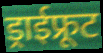
ड्राईफ्रूट